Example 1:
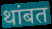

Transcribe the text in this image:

थांबत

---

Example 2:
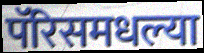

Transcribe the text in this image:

पॅरिसमधल्या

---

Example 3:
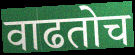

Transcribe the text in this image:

वाढतोच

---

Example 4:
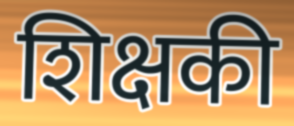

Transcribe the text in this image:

शिक्षकी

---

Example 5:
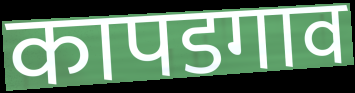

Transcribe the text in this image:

कापडगाव